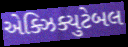
એક્ઝિક્યુટેબલ